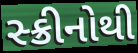
સ્ક્રીનોથી